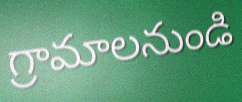
గ్రామాలనుండి